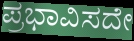
ಪ್ರಭಾವಿಸದೇ